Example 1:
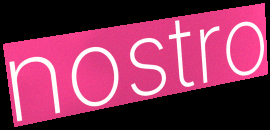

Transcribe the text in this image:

nostro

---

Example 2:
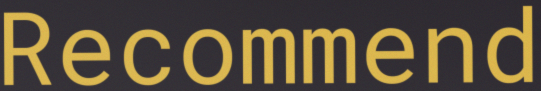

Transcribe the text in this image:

Recommend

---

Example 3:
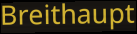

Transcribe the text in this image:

Breithaupt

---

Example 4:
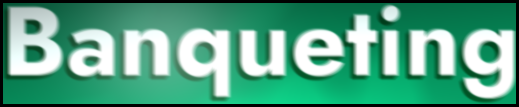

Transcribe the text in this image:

Banqueting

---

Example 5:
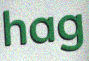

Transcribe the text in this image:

hag